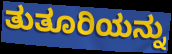
ತುತೂರಿಯನ್ನು